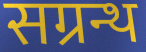
सग्रन्थ